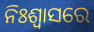
ନିଃଶ୍ଵାସରେ